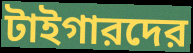
টাইগারদের